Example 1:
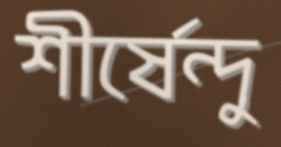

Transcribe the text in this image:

শীর্ষেন্দু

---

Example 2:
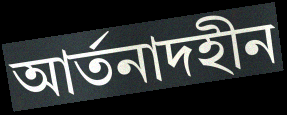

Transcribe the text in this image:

আর্তনাদহীন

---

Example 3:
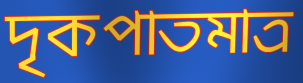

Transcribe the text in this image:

দৃকপাতমাত্র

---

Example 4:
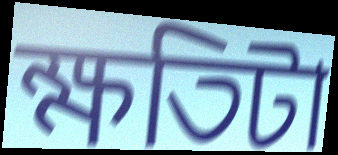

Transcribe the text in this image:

ক্ষতিটা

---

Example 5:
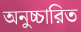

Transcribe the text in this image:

অনুচ্চারিত